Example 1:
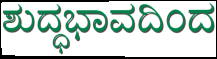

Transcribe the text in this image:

ಶುದ್ಧಭಾವದಿಂದ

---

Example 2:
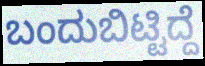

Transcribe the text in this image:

ಬಂದುಬಿಟ್ಟಿದ್ದೆ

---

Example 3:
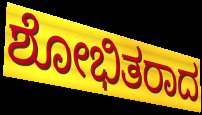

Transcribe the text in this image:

ಶೋಭಿತರಾದ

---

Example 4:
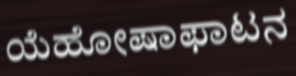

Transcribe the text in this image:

ಯೆಹೋಷಾಫಾಟನ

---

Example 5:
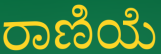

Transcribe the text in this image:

ರಾಣಿಯೆ